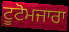
ਟੂਟੋਮਜਾਰਾ